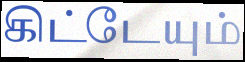
கிட்டேயும்